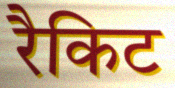
रैकिट